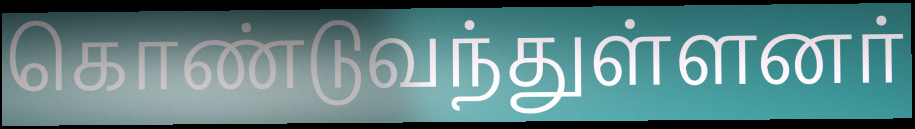
கொண்டுவந்துள்ளனர்